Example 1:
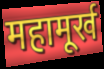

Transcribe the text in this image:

महामूर्ख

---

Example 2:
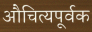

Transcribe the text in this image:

औचित्यपूर्वक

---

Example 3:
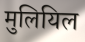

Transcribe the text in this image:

मुलियिल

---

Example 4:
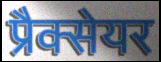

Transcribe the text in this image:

प्रैक्सेयर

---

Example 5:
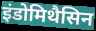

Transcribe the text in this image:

इंडोमिथैसिन